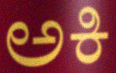
ಅಕಿ